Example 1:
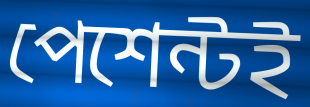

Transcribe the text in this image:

পেশেন্টই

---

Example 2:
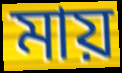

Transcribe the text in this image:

মায়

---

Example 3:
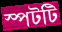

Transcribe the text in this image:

স্পটটি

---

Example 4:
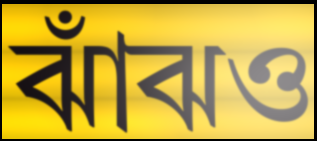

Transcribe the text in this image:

ঝাঁঝও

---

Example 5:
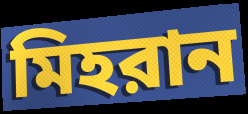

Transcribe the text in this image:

মিহরান